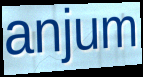
anjum